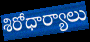
శిరోధార్యాలు